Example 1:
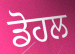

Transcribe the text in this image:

ਡੋਹਲ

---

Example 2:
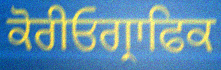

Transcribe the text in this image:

ਕੋਰੀਓਗ੍ਰਾਫਿਕ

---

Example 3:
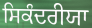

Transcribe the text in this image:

ਸਿਕੰਦਰੀਯਾ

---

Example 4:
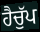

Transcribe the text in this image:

ਹੈਚੁੱਪ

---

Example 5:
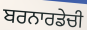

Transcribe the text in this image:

ਬਰਨਾਰਡੇਚੀ